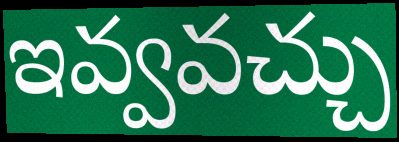
ఇవ్వవచ్చు